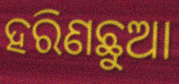
ହରିଣଛୁଆ